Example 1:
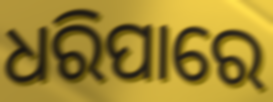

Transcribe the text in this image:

ଧରିପାରେ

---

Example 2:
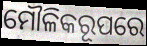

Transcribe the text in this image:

ମୌଳିକରୂପରେ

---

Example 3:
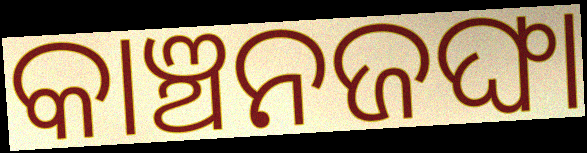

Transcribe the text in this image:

କାଞ୍ଚନଜଙ୍ଘା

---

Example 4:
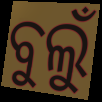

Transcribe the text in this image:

ବୁଲୁଁ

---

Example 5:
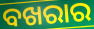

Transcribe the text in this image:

ବଖରାର